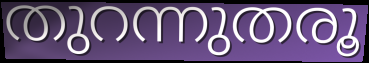
തുറന്നുതരൂ